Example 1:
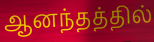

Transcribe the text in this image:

ஆனந்தத்தில்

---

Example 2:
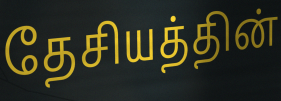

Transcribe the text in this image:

தேசியத்தின்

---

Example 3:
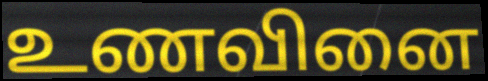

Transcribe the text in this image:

உணவினை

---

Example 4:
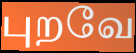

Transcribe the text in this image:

புறவே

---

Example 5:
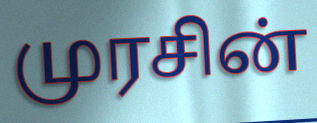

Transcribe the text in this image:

முரசின்